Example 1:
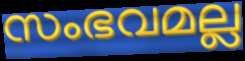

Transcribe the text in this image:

സംഭവമല്ല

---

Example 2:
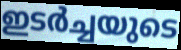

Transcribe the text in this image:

ഇടർച്ചയുടെ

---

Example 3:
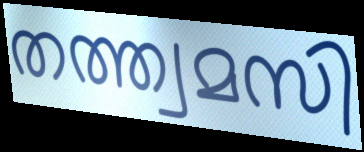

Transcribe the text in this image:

തത്ത്വമസി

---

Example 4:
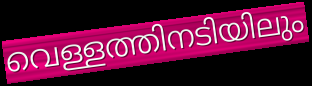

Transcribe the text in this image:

വെള്ളത്തിനടിയിലും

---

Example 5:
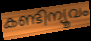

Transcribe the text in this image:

കണ്ടിന്യൂവം